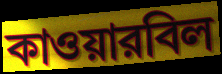
কাওয়ারবিল